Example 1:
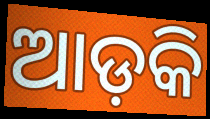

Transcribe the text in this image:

ଆଡ଼କି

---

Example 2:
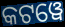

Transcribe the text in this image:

କଟୱେ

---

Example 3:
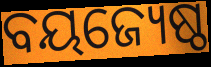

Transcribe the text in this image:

ବୟଜ୍ୟେଷ୍ଠ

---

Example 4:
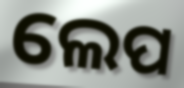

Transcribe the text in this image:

ଲେପ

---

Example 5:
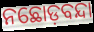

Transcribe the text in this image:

ନଛୋଡ଼ବନ୍ଦା